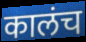
कालंच